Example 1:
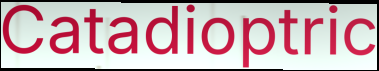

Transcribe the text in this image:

Catadioptric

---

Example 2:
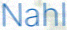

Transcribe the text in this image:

Nahl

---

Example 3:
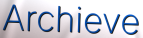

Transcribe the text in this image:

Archieve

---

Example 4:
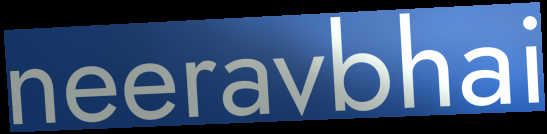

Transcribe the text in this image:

neeravbhai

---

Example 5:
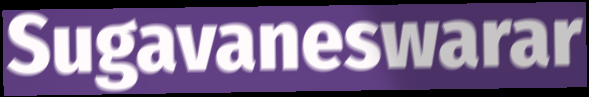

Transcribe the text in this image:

Sugavaneswarar